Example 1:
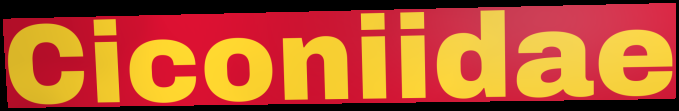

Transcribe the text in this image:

Ciconiidae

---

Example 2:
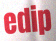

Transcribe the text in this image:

edip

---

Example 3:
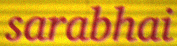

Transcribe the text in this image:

sarabhai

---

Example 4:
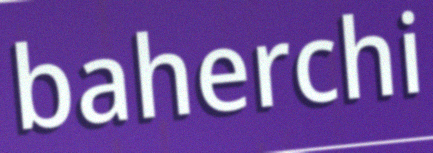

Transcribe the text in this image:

baherchi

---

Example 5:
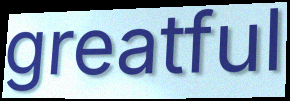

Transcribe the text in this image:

greatful